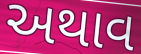
અથાવ